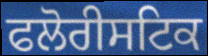
ਫਲੋਰੀਸਟਿਕ